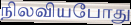
நிலவியபோது